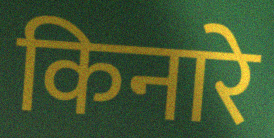
किनारे